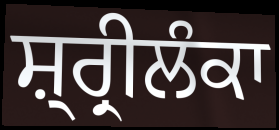
ਸ਼੍ਰ੍ਰੀਲੰਕਾ